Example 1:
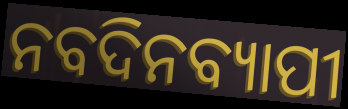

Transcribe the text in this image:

ନବଦିନବ୍ୟାପୀ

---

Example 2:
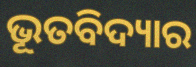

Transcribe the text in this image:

ଭୂତବିଦ୍ୟାର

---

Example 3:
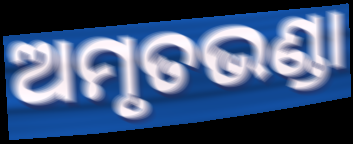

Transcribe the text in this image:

ଅମୃତଭଣ୍ଡା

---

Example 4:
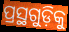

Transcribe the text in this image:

ପ୍ରସ୍ଥଗୁଡ଼ିକୁ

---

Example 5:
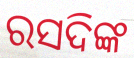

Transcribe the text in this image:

ରସଦିଙ୍କ